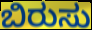
ಬಿರುಸು